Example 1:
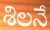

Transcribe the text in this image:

శిలనే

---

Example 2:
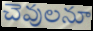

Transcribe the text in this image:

చెవులనూ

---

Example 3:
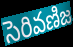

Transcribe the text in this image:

సెరివణిజ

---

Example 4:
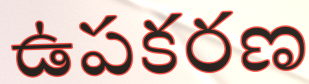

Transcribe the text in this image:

ఉపకరణ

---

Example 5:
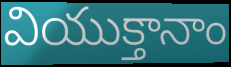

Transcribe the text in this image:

వియుక్తానాం